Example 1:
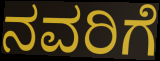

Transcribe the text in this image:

ನವರಿಗೆ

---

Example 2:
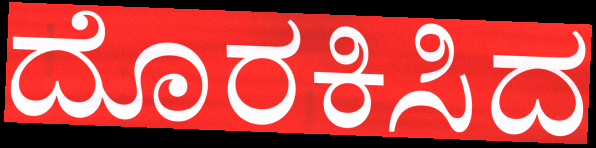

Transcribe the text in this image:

ದೊರಕಿಸಿದ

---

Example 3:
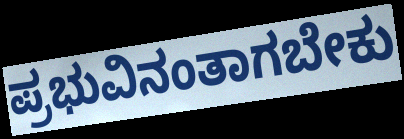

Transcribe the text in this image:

ಪ್ರಭುವಿನಂತಾಗಬೇಕು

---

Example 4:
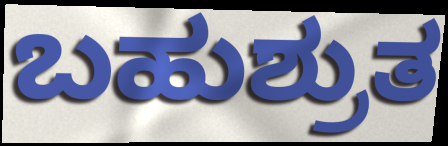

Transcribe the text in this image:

ಬಹುಶ್ರುತ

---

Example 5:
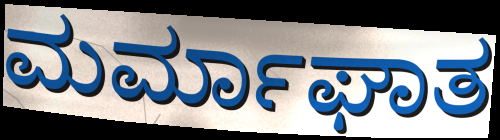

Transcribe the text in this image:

ಮರ್ಮಾಘಾತ